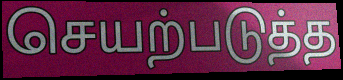
செயற்படுத்த